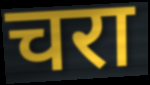
चरा